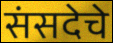
संसदेचे